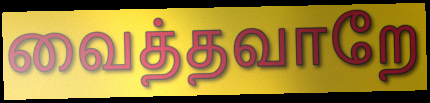
வைத்தவாறே